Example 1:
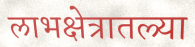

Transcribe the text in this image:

लाभक्षेत्रातल्या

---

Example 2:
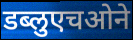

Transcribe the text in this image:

डब्लुएचओने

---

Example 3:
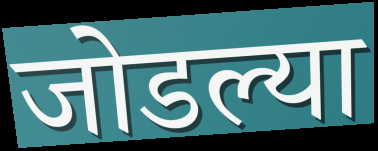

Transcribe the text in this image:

जोडल्या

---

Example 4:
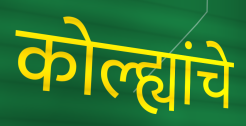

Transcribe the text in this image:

कोल्ह्यांचे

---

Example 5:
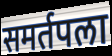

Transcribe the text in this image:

समर्तपला